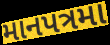
માનપત્રમા